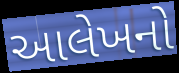
આલેખનો